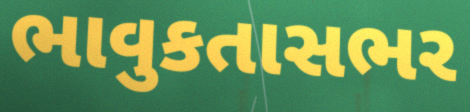
ભાવુકતાસભર